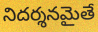
నిదర్శనమైతే